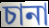
চানা